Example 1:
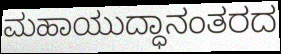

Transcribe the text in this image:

ಮಹಾಯುದ್ಧಾನಂತರದ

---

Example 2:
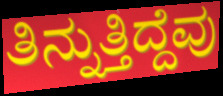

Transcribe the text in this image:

ತಿನ್ನುತ್ತಿದ್ದೆವು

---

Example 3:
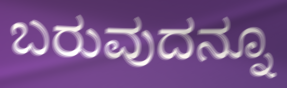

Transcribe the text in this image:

ಬರುವುದನ್ನೂ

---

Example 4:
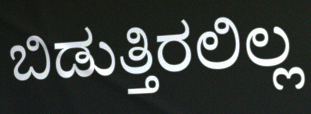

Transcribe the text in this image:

ಬಿಡುತ್ತಿರಲಿಲ್ಲ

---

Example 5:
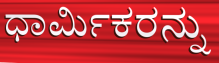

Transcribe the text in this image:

ಧಾರ್ಮಿಕರನ್ನು